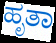
ಹೃತಾ